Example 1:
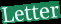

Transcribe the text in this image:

Letter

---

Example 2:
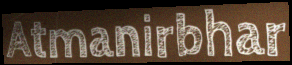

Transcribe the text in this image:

Atmanirbhar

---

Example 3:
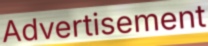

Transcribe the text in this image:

Advertisement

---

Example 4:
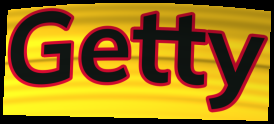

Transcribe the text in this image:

Getty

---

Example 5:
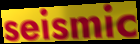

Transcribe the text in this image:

seismic